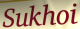
Sukhoi